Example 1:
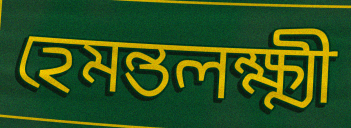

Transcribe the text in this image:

হেমন্তলক্ষ্মী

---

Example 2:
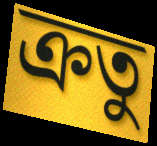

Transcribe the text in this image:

ক্রতু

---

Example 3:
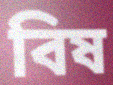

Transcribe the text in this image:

বিষ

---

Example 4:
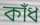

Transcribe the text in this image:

কাঁধ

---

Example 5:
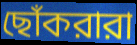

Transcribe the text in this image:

ছোঁকরারা